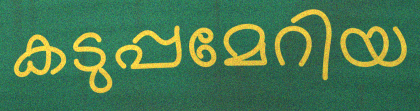
കടുപ്പമേറിയ